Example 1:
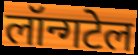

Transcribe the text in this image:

लॉन्गटेल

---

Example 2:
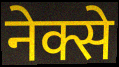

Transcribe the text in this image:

नेक्से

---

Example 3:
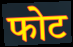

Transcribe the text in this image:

फोट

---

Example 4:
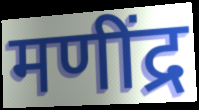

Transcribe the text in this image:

मणींद्र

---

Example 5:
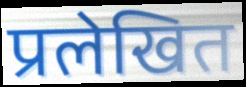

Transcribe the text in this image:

प्रलेखित